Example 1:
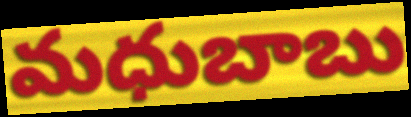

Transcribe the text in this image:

మధుబాబు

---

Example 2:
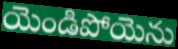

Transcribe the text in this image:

యెండిపోయెను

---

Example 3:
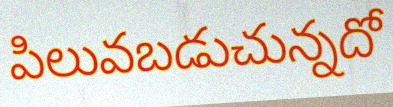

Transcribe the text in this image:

పిలువబడుచున్నదో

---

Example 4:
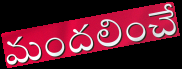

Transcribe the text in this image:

మందలించే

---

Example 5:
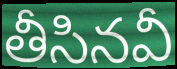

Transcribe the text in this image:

తీసినవీ